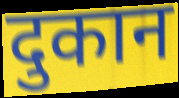
दुकान